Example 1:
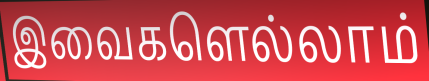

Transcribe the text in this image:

இவைகளெல்லாம்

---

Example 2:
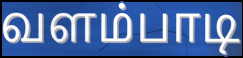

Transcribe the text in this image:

வளம்பாடி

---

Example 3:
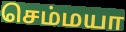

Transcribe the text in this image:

செம்மயா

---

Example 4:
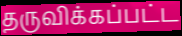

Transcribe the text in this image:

தருவிக்கப்பட்ட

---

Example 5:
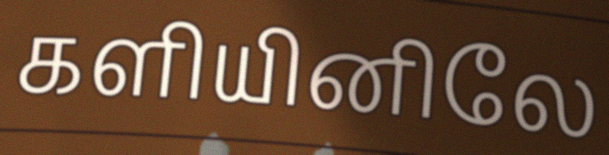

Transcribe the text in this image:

களியினிலே